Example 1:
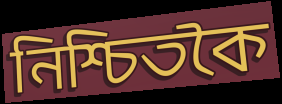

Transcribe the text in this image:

নিশ্চিতকৈ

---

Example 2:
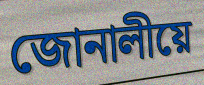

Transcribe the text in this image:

জোনালীয়ে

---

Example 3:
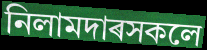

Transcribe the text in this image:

নিলামদাৰসকলে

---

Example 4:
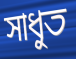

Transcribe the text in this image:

সাধুত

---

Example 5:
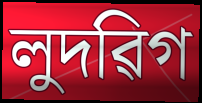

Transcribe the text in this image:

লুদৱিগ